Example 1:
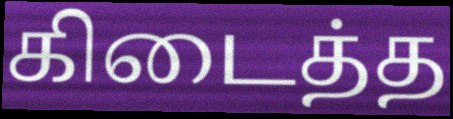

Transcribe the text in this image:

கிடைத்த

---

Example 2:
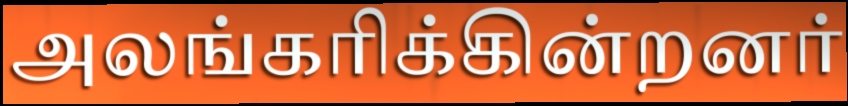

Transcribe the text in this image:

அலங்கரிக்கின்றனர்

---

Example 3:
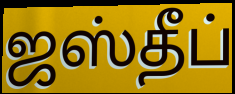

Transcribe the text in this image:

ஜஸ்தீப்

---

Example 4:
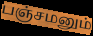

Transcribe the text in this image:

பஞ்சமனும்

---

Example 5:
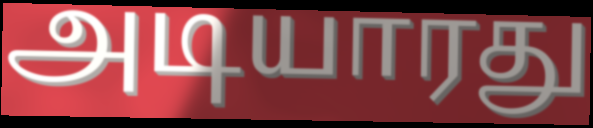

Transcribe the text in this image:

அடியாரது